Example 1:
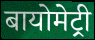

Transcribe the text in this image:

बायोमेट्री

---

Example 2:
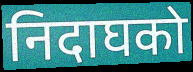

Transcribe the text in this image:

निदाघको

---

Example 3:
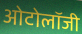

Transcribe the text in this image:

ओटोलॉजी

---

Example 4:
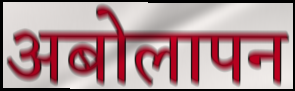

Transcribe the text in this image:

अबोलापन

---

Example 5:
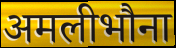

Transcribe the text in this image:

अमलीभौना